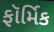
ફૉર્મિક